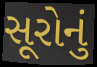
સૂરોનું